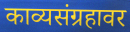
काव्यसंग्रहावर